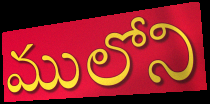
ములోని